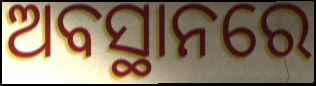
ଅବସ୍ଥାନରେ